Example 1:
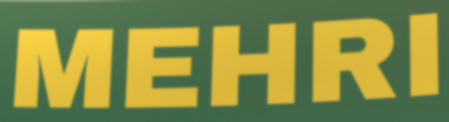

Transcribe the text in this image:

MEHRI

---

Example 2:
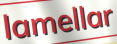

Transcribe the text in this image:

lamellar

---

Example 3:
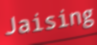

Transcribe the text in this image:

Jaising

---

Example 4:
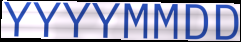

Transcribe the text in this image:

YYYYMMDD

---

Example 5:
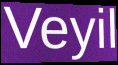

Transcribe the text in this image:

Veyil